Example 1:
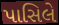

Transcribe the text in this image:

પાસિલે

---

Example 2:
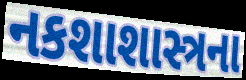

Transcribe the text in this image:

નકશાશાસ્ત્રના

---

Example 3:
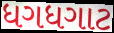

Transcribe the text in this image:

ધગધગાટ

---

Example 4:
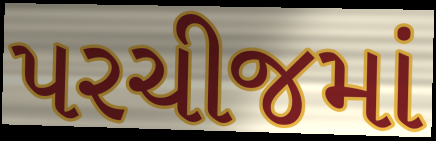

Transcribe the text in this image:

પરચીજમાં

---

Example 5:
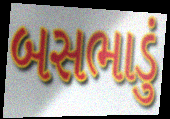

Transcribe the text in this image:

બસભાડું